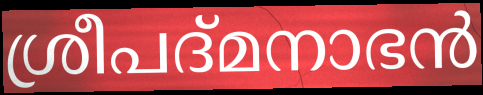
ശ്രീപദ്മനാഭൻ